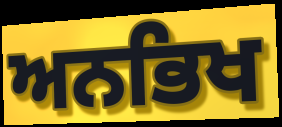
ਅਨਭਿਖ